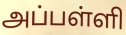
அப்பள்ளி